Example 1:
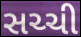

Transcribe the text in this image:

સચ્ચી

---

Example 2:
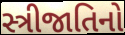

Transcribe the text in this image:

સ્ત્રીજાતિનો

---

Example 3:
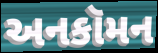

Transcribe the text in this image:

અનકૉમન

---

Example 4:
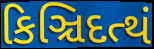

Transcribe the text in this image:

કિઞ્ચિદત્થં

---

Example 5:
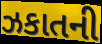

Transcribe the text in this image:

ઝકાતની